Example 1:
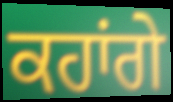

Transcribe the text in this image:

ਕਹਾਂਗੇ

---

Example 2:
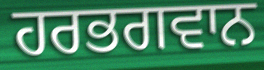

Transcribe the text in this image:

ਹਰਭਗਵਾਨ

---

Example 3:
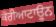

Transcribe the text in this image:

ਕੋਰੀਆਟਾਊਨ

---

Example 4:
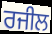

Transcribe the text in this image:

ਰਜੀਲ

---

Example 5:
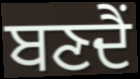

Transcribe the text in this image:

ਬਣਦੈਂ